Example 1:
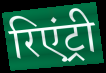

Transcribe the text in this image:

रिएंट्री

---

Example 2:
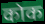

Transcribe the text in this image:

कोक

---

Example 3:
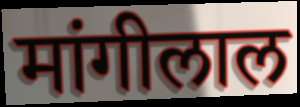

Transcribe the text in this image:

मांगीलाल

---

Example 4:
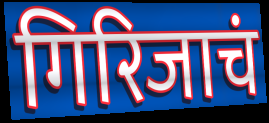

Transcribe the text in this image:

गिरिजाचं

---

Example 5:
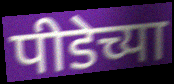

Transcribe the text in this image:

पीडेच्या